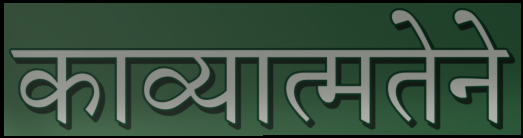
काव्यात्मतेने